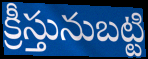
క్రీస్తునుబట్టి